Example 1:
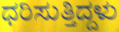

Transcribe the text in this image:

ಧರಿಸುತ್ತಿದ್ದಳು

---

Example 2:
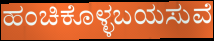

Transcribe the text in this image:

ಹಂಚಿಕೊಳ್ಳಬಯಸುವೆ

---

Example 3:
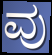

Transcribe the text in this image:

ವು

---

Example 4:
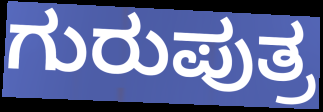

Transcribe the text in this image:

ಗುರುಪುತ್ರ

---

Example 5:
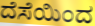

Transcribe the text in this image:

ದೆಸೆಯಿಂದ